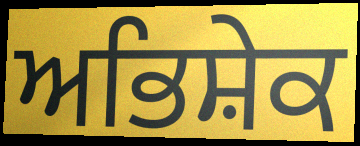
ਅਭਿਸ਼ੇਕ